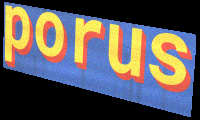
porus